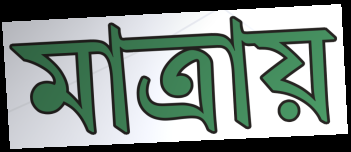
মাত্ৰায়